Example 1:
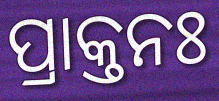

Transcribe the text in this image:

ପ୍ରାକ୍ତନଃ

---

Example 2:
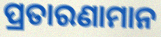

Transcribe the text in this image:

ପ୍ରତାରଣାମାନ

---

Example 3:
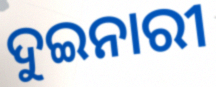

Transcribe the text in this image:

ଦୁଇନାରୀ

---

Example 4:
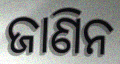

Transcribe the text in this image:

ଜାଣିନ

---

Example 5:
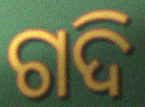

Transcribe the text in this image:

ଗଦି